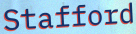
Stafford